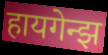
हायगेन्झ